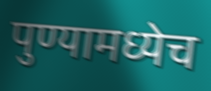
पुण्यामध्येच